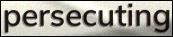
persecuting